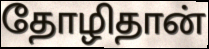
தோழிதான்